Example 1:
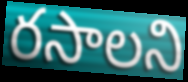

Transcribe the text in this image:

రసాలని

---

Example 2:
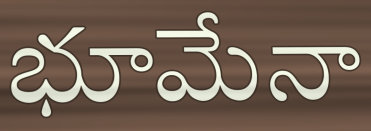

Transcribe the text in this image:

భూమేనా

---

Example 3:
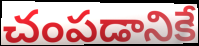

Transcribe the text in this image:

చంపడానికే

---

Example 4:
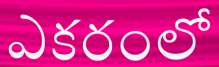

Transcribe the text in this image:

ఎకరంలో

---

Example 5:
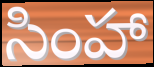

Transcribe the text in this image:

సింహా